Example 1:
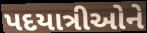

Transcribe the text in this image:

પદયાત્રીઓને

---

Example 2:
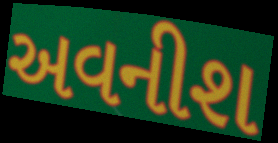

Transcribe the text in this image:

અવનીશ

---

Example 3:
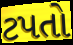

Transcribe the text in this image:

ટપતો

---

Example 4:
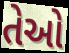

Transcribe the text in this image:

તેઓે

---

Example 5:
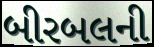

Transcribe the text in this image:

બીરબલની